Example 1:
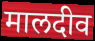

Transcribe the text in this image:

मालदीव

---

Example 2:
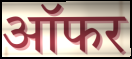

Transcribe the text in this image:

ऑफर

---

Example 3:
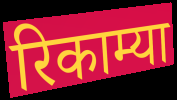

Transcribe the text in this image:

रिकाम्या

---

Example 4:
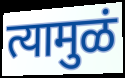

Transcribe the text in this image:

त्यामुळं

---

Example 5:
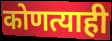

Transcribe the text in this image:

कोणत्याही